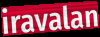
iravalan